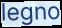
legno